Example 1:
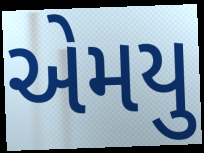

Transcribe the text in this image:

એમયુ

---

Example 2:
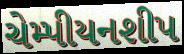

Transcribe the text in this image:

ચેમ્પીયનશીપ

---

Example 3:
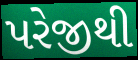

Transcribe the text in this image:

પરેજીથી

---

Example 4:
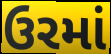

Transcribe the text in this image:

ઉરમાં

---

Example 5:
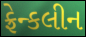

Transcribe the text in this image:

ફ્રેન્કલીન